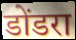
डोंडरा